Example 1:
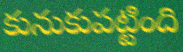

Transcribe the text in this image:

కునుకుపట్టింది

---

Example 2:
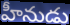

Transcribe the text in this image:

హీనుడు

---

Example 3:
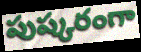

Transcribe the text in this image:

పుష్కరంగా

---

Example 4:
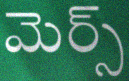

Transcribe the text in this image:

మెర్స్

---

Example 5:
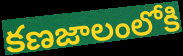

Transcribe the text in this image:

కణజాలంలోకి